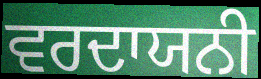
ਵਰਦਾਯਨੀ